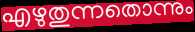
എഴുതുന്നതൊന്നും